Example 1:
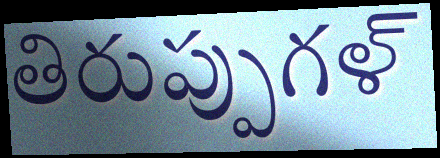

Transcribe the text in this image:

తిరుప్పుగళ్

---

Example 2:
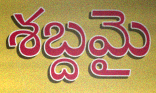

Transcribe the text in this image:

శబ్దమై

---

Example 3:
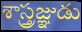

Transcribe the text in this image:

శాస్త్రజ్ఞుడు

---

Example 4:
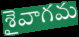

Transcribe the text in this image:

శైవాగమ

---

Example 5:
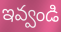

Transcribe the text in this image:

ఇవ్వండి